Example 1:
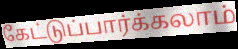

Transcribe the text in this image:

கேட்டுப்பார்க்கலாம்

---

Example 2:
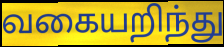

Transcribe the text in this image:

வகையறிந்து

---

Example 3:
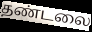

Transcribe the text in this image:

தண்டலை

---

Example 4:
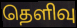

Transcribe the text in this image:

தெளிவு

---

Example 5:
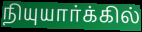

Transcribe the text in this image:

நியுயார்க்கில்